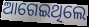
ଆଗେଇଥିଲେ